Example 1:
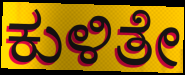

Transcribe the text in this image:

ಕುಳಿತೇ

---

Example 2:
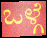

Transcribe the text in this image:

ಒಳ್ಗೆ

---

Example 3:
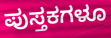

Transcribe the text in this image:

ಪುಸ್ತಕಗಳೂ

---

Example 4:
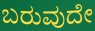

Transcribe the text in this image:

ಬರುವುದೇ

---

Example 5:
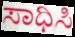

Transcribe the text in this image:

ಸಾಧಿಸಿ